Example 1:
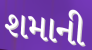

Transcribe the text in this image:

શમાની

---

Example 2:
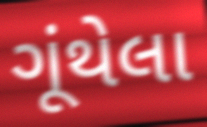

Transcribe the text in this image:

ગૂંથેલા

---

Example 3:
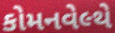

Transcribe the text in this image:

કોમનવેલ્થે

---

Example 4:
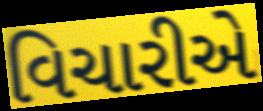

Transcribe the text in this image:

વિચારીએ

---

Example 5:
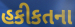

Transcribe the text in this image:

હકીકતના